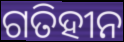
ଗତିହୀନ